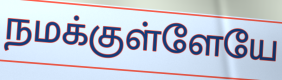
நமக்குள்ளேயே